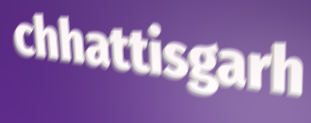
chhattisgarh